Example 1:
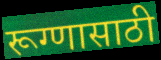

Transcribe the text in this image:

रूग्णासाठी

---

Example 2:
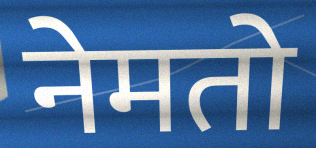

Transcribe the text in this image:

नेमतो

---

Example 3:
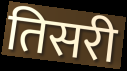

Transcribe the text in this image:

तिसरी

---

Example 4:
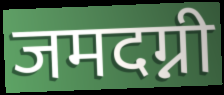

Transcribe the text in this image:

जमदग्नी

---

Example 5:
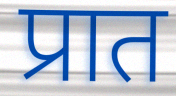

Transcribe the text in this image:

प्रात